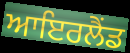
ਆਇਰਲੈੰਡ